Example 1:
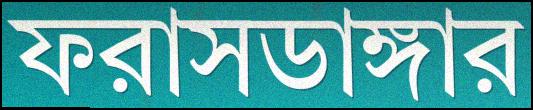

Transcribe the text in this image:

ফরাসডাঙ্গার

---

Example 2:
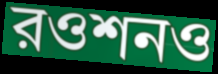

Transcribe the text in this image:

রওশনও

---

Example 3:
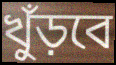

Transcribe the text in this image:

খুঁড়বে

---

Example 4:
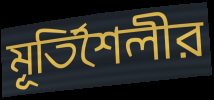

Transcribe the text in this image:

মূর্তিশৈলীর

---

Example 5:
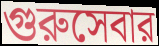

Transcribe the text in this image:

গুরুসেবার